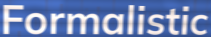
Formalistic